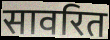
सावरित